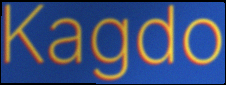
Kagdo